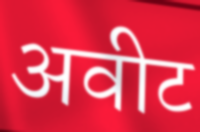
अवीट